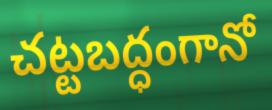
చట్టబద్ధంగానో